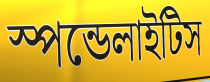
স্পন্ডেলাইটিস